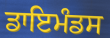
ਡਾਇਮੰਡਸ